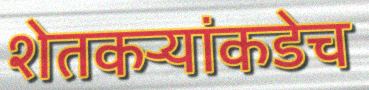
शेतकऱ्यांकडेच